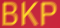
BKP